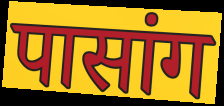
पासांग